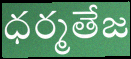
ధర్మతేజ